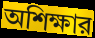
অশিক্ষার